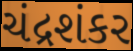
ચંદ્રશંકર